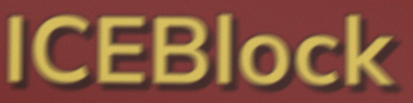
ICEBlock